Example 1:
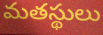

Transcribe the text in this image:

మతస్థులు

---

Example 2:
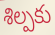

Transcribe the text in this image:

శిల్పకు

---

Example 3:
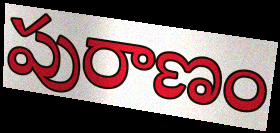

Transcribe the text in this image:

పురాణం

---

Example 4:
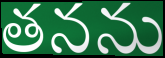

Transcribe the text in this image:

తనను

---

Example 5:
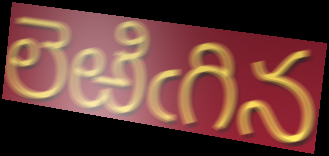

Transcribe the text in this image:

లెఱిఁగిన